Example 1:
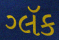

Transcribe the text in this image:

ગ્લૅક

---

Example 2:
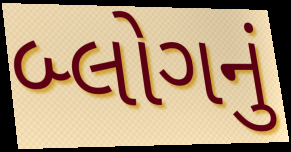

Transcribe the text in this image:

બ્લોગનું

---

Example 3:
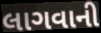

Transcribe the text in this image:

લાગવાની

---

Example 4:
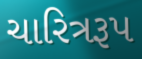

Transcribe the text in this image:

ચારિત્રરૂપ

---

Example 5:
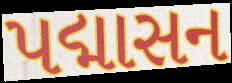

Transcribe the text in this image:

પદ્માસન